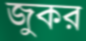
জুকর